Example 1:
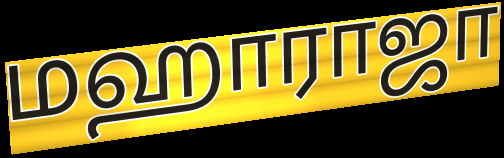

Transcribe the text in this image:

மஹாராஜா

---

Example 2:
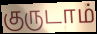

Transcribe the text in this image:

குருடாம்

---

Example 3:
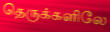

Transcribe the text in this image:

தெருக்களிலே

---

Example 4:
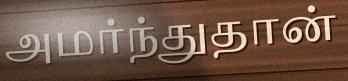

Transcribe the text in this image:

அமர்ந்துதான்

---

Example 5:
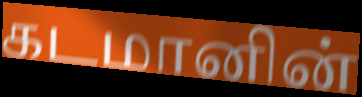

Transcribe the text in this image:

கடமானின்